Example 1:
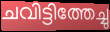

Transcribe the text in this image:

ചവിട്ടിത്തേച്ചു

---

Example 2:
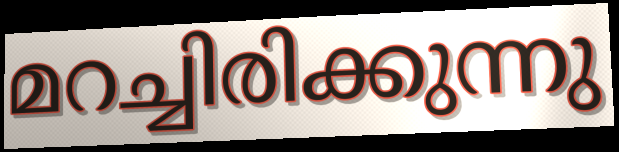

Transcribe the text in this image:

മറച്ചിരിക്കുന്നു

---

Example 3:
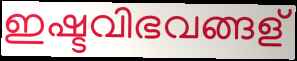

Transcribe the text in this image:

ഇഷ്ടവിഭവങ്ങള്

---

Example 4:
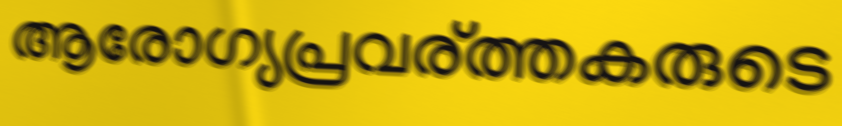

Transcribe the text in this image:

ആരോഗ്യപ്രവര്ത്തകരുടെ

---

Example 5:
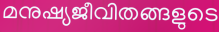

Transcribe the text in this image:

മനുഷ്യജീവിതങ്ങളുടെ